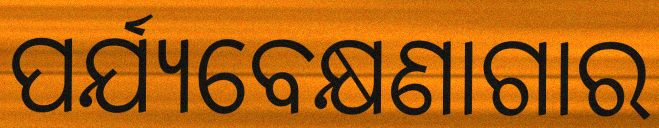
ପର୍ଯ୍ୟବେକ୍ଷଣାଗାର